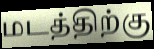
மடத்திற்கு